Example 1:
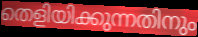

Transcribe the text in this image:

തെളിയിക്കുന്നതിനും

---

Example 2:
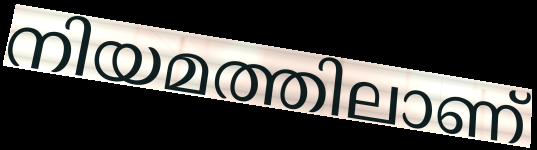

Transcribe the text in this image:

നിയമത്തിലാണ്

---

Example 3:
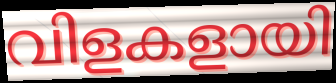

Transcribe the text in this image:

വിളകളായി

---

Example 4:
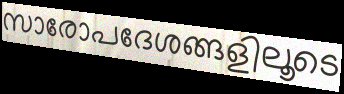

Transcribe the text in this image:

സാരോപദേശങ്ങളിലൂടെ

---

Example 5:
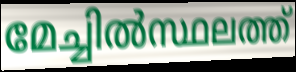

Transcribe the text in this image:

മേച്ചിൽസ്ഥലത്ത്